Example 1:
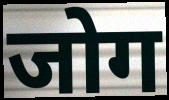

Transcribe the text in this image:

जोग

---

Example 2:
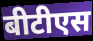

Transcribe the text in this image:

बीटीएस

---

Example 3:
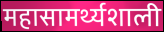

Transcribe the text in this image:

महासामर्थ्यशाली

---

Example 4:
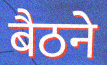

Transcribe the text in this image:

बैठने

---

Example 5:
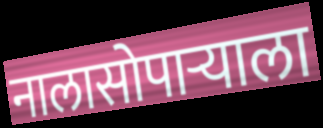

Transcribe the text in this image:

नालासोपाऱ्याला